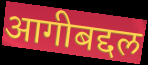
आगीबद्दल